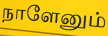
நாளேனும்